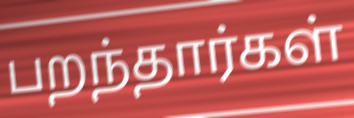
பறந்தார்கள்